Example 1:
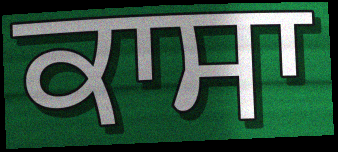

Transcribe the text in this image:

ਕਾਸਾ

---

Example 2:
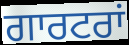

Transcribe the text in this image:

ਗਾਰਟਰਾਂ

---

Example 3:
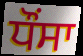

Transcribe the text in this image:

ਧੌਂਸਾ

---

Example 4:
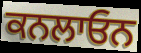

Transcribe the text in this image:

ਕਨਲਾਓਨ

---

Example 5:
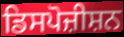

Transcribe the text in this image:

ਡਿਸਪੋਜ਼ੀਸ਼ਨ